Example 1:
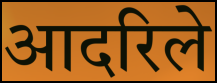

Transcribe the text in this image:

आदरिले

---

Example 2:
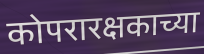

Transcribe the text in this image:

कोपरारक्षकाच्या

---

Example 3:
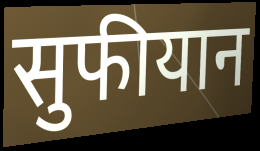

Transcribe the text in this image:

सुफीयान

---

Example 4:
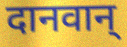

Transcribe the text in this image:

दानवान्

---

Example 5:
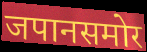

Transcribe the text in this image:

जपानसमोर